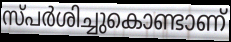
സ്പർശിച്ചുകൊണ്ടാണ്